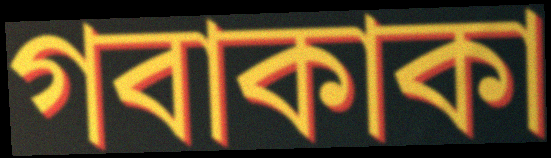
গবাকাকা